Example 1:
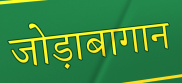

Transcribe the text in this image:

जोड़ाबागान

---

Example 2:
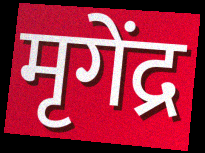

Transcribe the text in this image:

मृगेंद्र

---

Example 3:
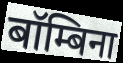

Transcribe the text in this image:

बॉम्बिना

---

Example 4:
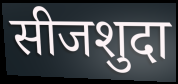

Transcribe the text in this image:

सीजशुदा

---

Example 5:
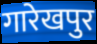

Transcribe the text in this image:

गारेखपुर